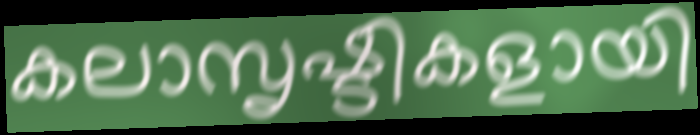
കലാസൃഷ്ടികളായി